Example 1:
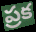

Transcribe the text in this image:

ప్రక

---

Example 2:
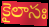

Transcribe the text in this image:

కైలాసః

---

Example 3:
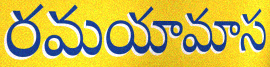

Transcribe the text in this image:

రమయామాస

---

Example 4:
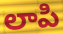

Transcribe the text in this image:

లాపి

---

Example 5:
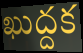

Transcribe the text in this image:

ఖుద్దక